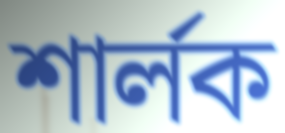
শার্লক